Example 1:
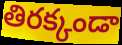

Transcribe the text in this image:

తిరక్కండా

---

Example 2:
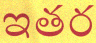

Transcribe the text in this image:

ఇతర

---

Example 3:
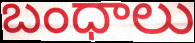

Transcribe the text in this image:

బంధాలు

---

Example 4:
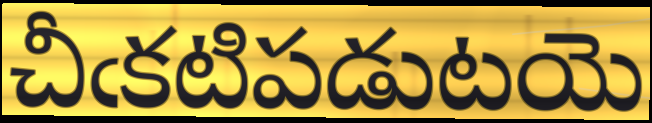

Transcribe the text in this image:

చీఁకటిపడుటయె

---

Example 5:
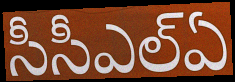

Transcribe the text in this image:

సీసీఎల్ఏ